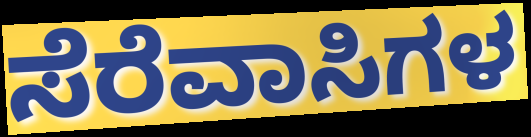
ಸೆರೆವಾಸಿಗಳ